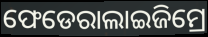
ଫେଡେରାଲାଇଜିମ୍ରେ